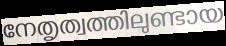
നേതൃത്വത്തിലുണ്ടായ